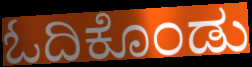
ಓದಿಕೊಂಡು